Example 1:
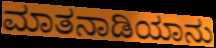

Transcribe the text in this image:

ಮಾತನಾಡಿಯಾನು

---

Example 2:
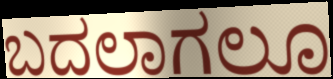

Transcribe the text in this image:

ಬದಲಾಗಲೂ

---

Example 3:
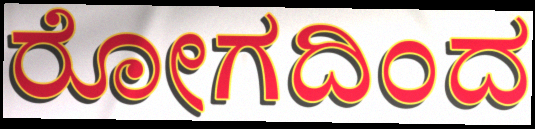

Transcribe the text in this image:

ರೋಗದಿಂದ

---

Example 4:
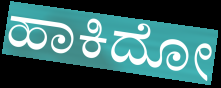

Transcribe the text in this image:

ಹಾಕಿದೋ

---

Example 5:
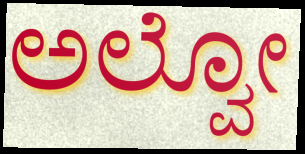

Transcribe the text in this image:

ಅಲ್ವೋ